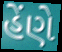
હેંણે